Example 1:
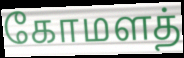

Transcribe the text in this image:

கோமளத்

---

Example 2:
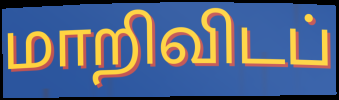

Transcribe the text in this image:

மாறிவிடப்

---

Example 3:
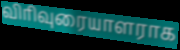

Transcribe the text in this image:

விரிவுரையாளராக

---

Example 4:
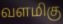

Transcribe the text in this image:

வளமிகு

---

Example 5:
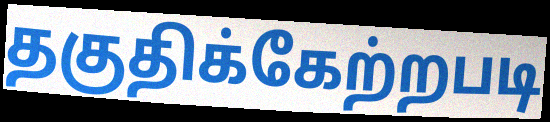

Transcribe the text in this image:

தகுதிக்கேற்றபடி